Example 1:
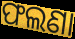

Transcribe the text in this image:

ଫଲଣା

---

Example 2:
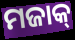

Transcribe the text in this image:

ମଜାକ୍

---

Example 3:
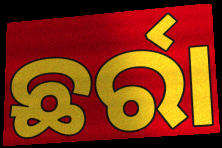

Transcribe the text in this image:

ଛର୍ରା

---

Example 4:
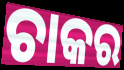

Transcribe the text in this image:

ଚାକର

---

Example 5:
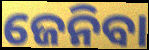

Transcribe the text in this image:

ଜେନିବା